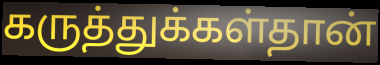
கருத்துக்கள்தான்